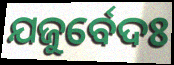
ଯଜୁର୍ବେଦଃ